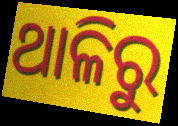
ଥାଳିରୁ